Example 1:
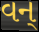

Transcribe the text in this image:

વન્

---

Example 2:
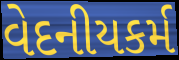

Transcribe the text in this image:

વેદનીયકર્મ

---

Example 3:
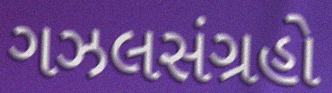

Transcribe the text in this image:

ગઝલસંગ્રહો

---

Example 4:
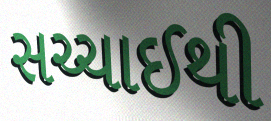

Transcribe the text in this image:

સચ્ચાઈથી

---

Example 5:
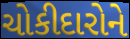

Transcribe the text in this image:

ચોકીદારોને